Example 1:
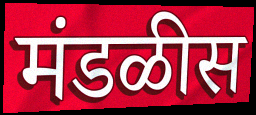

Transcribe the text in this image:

मंडळीस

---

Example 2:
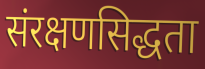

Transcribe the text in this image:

संरक्षणसिद्धता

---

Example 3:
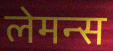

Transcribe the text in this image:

लेमन्स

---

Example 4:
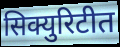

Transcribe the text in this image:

सिक्युरिटीत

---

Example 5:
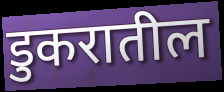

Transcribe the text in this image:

डुकरातील